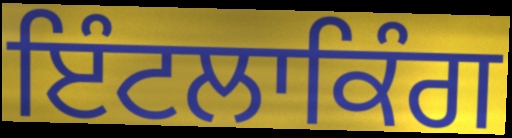
ਇੰਟਲਾਕਿੰਗ